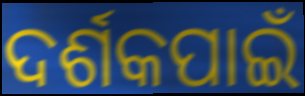
ଦର୍ଶକପାଇଁ